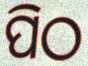
ପିଠ